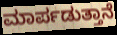
ಮಾರ್ಪಡುತ್ತಾನೆ